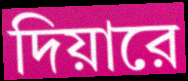
দিয়ারে